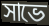
সাভে